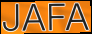
JAFA